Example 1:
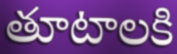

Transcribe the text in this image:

తూటాలకి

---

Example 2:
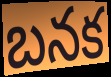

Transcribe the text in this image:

బనక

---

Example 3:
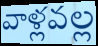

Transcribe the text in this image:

వాళ్లవల్ల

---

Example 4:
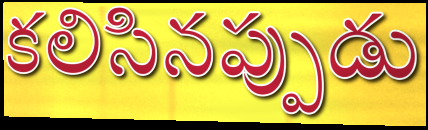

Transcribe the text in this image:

కలిసినప్పుడు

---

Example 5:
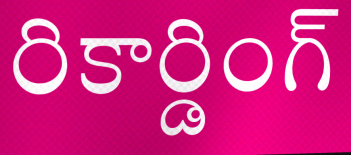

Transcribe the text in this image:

రికార్డింగ్